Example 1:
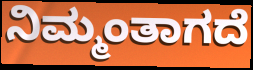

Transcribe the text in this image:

ನಿಮ್ಮಂತಾಗದೆ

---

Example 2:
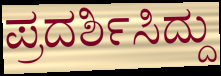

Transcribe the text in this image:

ಪ್ರದರ್ಶಿಸಿದ್ದು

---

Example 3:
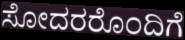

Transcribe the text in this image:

ಸೋದರರೊಂದಿಗೆ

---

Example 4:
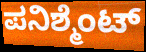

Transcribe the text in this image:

ಪನಿಶ್ಮೆಂಟ್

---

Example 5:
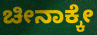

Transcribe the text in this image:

ಚೀನಾಕ್ಕೇ